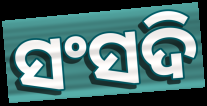
ସଂସଦି